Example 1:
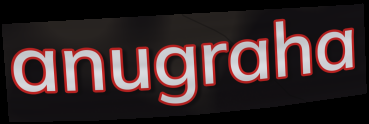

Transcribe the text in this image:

anugraha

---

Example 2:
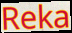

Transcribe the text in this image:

Reka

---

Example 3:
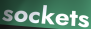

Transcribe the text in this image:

sockets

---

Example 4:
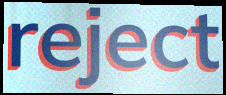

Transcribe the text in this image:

reject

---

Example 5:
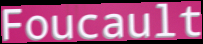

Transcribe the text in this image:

Foucault